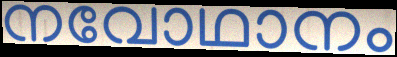
നവോഥാനം